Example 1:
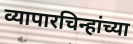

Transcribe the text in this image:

व्यापारचिन्हांच्या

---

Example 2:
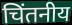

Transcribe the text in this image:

चिंतनीय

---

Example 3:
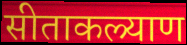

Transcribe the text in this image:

सीताकल्याण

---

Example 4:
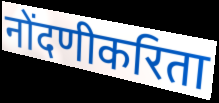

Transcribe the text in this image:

नोंदणीकरिता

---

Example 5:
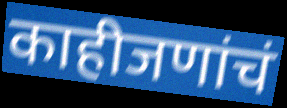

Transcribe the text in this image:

काहीजणांचं